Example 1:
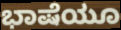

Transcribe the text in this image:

ಭಾಷೆಯೂ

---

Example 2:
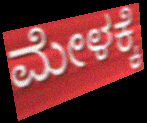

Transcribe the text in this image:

ಮೇಳಕ್ಕೆ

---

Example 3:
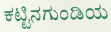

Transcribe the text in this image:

ಕಟ್ಟಿನಗುಂಡಿಯ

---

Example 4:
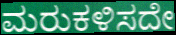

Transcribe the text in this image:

ಮರುಕಳಿಸದೇ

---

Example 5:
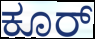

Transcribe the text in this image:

ಕೂರ್